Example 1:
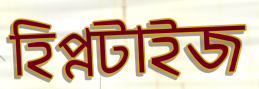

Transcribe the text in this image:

হিপ্নটাইজ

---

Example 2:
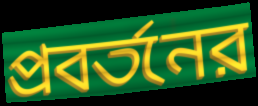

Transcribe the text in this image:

প্রবর্তনের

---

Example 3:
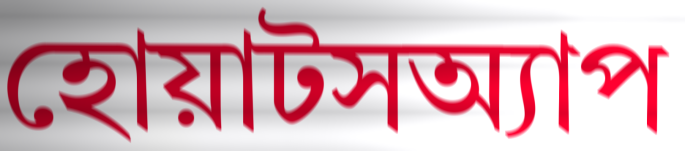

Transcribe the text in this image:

হোয়াটসঅ্যাপ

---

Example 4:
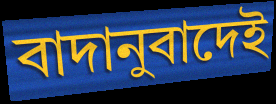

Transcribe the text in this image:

বাদানুবাদেই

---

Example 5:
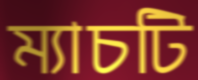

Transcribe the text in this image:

ম্যাচটি